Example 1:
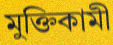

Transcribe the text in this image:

মুক্তিকামী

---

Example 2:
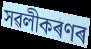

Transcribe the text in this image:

সৱলীকৰণৰ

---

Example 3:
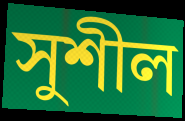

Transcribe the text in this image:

সুশীল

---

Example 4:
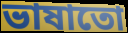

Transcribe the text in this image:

ভাষাতো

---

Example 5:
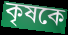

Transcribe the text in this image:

কৃষকে